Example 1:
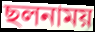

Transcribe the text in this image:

ছলনাময়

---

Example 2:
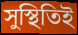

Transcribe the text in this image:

সুস্থিতিই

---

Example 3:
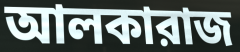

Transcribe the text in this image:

আলকারাজ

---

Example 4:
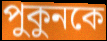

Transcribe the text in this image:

পুকুনকে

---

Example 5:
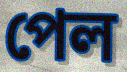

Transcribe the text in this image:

পেল